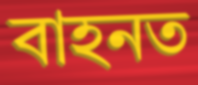
বাহনত